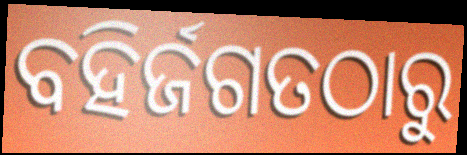
ବହିର୍ଜଗତଠାରୁ